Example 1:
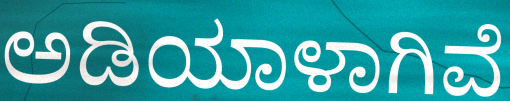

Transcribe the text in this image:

ಅಡಿಯಾಳಾಗಿವೆ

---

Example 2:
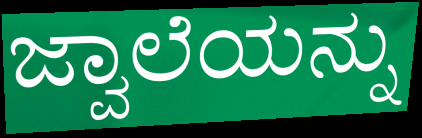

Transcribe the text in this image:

ಜ್ವಾಲೆಯನ್ನು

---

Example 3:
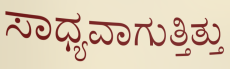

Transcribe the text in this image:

ಸಾಧ್ಯವಾಗುತ್ತಿತ್ತು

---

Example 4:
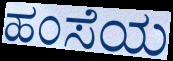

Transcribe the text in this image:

ಹಂಸೆಯ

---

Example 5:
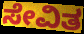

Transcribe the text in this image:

ಸೇವಿತ